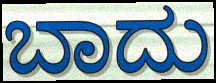
ಬಾದು